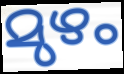
മുഴം